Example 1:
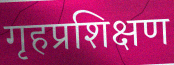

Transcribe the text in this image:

गृहप्रशिक्षण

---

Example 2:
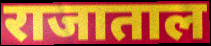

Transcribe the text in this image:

राजाताल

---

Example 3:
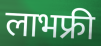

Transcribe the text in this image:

लाभफ्री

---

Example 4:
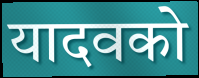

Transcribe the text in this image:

यादवको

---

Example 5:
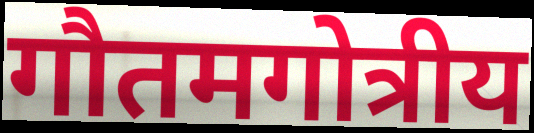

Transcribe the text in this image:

गौतमगोत्रीय